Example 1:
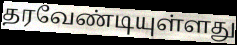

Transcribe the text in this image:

தரவேண்டியுள்ளது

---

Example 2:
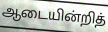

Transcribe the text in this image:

ஆடையின்றித்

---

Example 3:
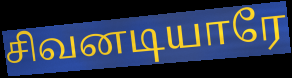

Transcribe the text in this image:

சிவனடியாரே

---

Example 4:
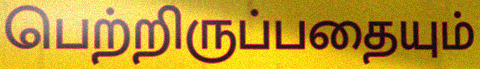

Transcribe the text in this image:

பெற்றிருப்பதையும்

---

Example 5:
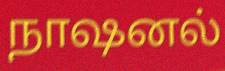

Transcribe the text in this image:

நாஷனல்